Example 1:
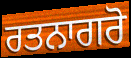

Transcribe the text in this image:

ਰਤਨਾਗਰੋ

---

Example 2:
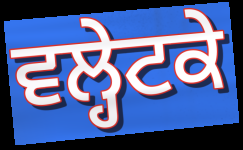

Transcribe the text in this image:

ਵਲ੍ਹੇਟਕੇ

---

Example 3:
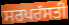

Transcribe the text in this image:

ਸਰਪਰੱਸਤੀ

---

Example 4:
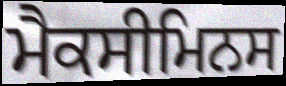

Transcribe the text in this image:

ਮੈਕਸੀਮਿਨਸ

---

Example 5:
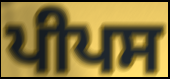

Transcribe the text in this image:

ਪੀਪਸ